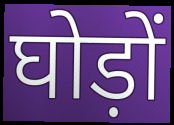
घोड़ों